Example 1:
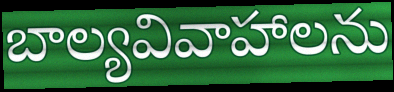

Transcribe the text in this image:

బాల్యవివాహాలను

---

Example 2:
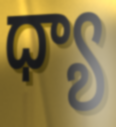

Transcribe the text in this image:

ధ్యా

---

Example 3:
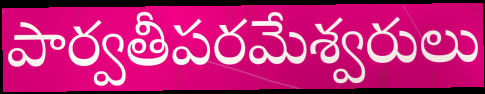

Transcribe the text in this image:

పార్వతీపరమేశ్వరులు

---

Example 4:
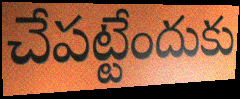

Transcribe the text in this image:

చేపట్టేందుకు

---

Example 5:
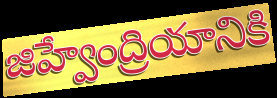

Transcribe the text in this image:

జిహ్వేంద్రియానికి